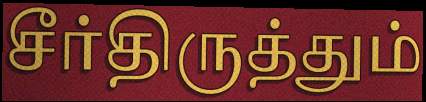
சீர்திருத்தும்